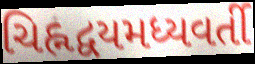
ચિહ્નદ્વયમધ્યવર્તી